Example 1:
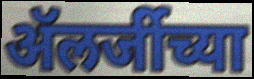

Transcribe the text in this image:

ॲलर्जीच्या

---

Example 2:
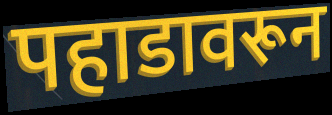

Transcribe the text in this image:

पहाडावरून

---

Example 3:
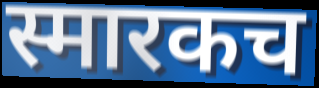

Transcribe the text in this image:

स्मारकच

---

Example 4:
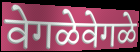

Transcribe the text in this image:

वेगळेवेगळे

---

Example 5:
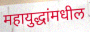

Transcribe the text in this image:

महायुद्धांमधील